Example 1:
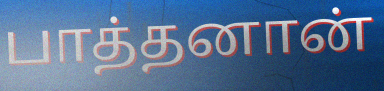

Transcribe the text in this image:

பாத்தனான்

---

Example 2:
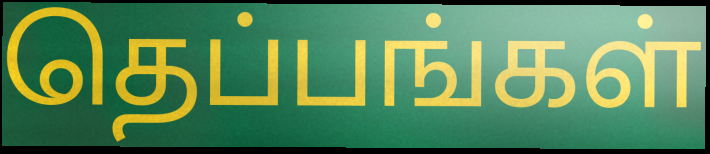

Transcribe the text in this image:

தெப்பங்கள்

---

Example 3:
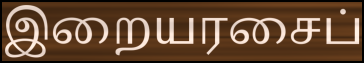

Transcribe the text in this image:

இறையரசைப்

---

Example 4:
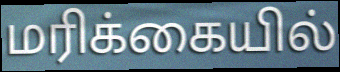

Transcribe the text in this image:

மரிக்கையில்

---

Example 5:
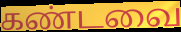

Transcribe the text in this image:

கண்டவை